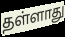
தள்ளாது